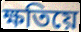
ক্ষতিয়ে